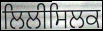
ਲਿਲੀਸਿਲਕ